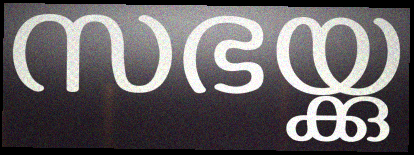
സഭയ്ക്കു